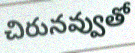
చిరునవ్వుతో